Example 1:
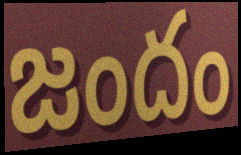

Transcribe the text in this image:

జందం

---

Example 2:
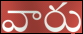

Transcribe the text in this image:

వారు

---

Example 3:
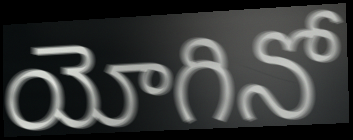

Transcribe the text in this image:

యోగినో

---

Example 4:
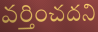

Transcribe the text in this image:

వర్తించదని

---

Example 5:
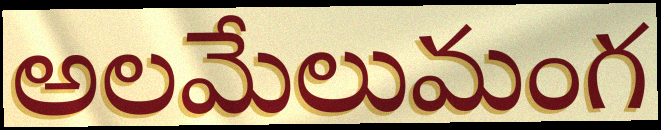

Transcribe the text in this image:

అలమేలుమంగ